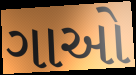
ગાઓ